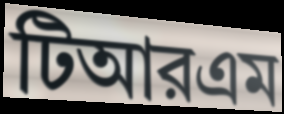
টিআরএম